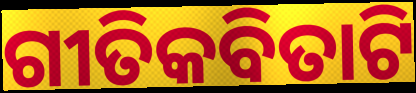
ଗୀତିକବିତାଟି